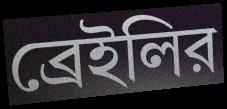
ব্রেইলির